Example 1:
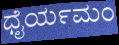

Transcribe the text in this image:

ಧೈರ್ಯಮಂ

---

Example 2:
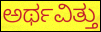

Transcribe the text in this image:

ಅರ್ಥವಿತ್ತು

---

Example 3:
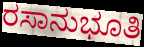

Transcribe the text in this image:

ರಸಾನುಭೂತಿ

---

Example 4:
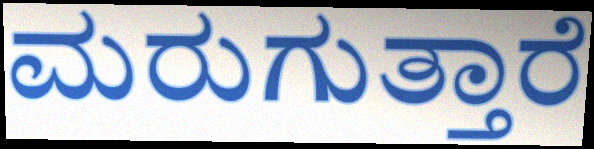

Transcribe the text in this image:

ಮರುಗುತ್ತಾರೆ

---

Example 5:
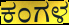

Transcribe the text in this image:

ಕಂಗಳ